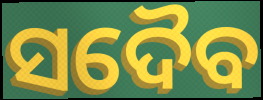
ସଦୈବ